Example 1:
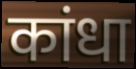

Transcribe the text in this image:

कांधा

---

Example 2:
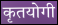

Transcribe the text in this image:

कृतयोगी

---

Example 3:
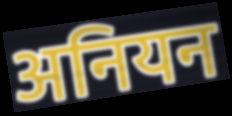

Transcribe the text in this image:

अनियन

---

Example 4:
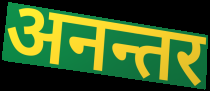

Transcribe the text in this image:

अनन्तर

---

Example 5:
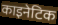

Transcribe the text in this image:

काइनेटिक